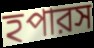
হপারস